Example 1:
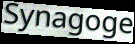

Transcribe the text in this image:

Synagoge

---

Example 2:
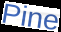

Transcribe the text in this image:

Pine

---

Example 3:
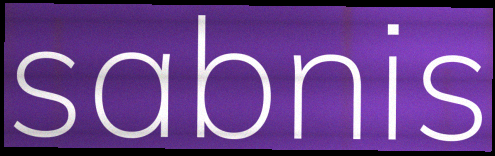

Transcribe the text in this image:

sabnis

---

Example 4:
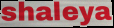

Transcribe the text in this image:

shaleya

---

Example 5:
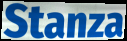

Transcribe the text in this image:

Stanza